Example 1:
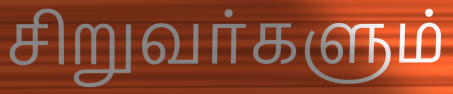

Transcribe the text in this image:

சிறுவர்களும்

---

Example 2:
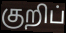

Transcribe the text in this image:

குறிப்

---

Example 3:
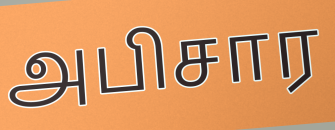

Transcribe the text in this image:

அபிசார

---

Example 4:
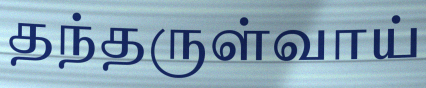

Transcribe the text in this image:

தந்தருள்வாய்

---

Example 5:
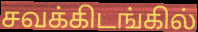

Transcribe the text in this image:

சவக்கிடங்கில்